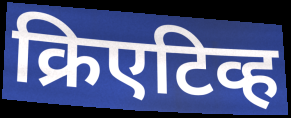
क्रिएटिव्ह